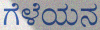
ಗೆಳೆಯನ